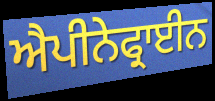
ਐਪੀਨੇਫ੍ਰਾਈਨ